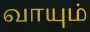
வாயும்